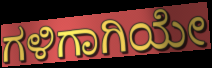
ಗಳಿಗಾಗಿಯೇ